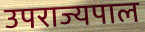
उपराज्यपाल